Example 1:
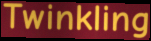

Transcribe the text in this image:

Twinkling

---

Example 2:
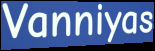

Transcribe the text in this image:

Vanniyas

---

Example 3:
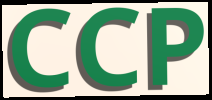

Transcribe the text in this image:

CCP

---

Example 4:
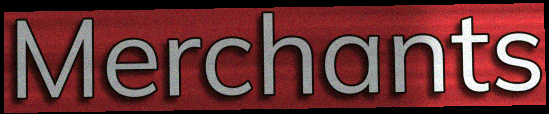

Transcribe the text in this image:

Merchants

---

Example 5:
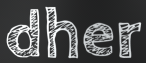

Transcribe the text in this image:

dher